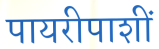
पायरीपाशीं